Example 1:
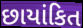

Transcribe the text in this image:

છાયાંકિત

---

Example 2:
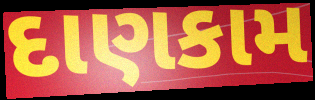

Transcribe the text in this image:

દાણકામ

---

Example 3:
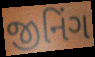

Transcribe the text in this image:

જીનિંગ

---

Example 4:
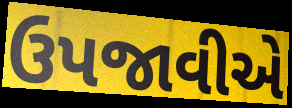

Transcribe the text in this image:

ઉપજાવીએ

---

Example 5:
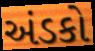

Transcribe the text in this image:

અંડકો